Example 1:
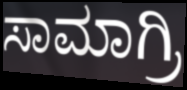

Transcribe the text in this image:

ಸಾಮಾಗ್ರಿ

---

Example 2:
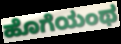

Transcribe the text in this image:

ಹೊಗೆಯಂಥ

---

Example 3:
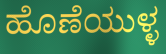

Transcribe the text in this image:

ಹೊಣೆಯುಳ್ಳ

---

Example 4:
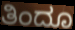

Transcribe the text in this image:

ತಿಂದೂ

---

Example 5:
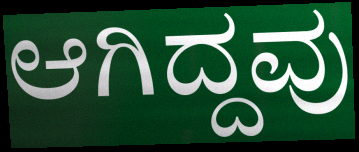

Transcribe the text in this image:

ಆಗಿದ್ದವು